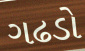
ગઢડો